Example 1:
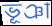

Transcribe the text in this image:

ভূঞা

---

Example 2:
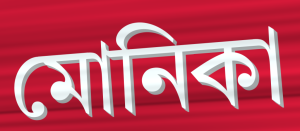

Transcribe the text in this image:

মোনিকা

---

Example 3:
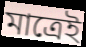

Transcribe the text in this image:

মাত্রেই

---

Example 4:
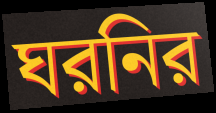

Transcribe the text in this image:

ঘরনির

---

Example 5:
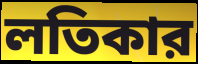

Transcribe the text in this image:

লতিকার